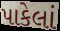
પાકેલાં